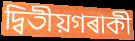
দ্বিতীয়গৰাকী